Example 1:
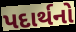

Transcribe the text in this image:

પદાર્થનો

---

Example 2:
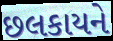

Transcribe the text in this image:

છલકાયને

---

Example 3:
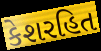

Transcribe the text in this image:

કેશરહિત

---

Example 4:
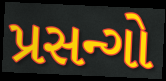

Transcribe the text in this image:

પ્રસન્ગો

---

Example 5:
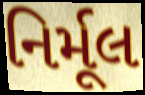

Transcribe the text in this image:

નિર્મૂલ